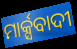
ମାର୍କ୍ସବାଦୀ